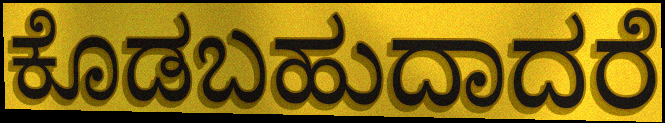
ಕೊಡಬಹುದಾದರೆ